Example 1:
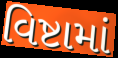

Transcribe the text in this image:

વિષ્ટામાં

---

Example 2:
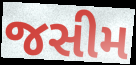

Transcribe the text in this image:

જસીમ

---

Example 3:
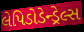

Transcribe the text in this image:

લેપિડોડેન્ડ્રેલ્સ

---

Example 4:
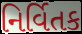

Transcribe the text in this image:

નિર્વિતક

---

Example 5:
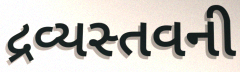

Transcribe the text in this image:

દ્રવ્યસ્તવની